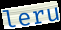
leru